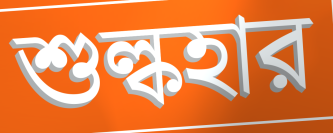
শুল্কহার